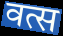
वत्स